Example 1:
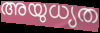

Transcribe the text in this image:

അയുധ്യത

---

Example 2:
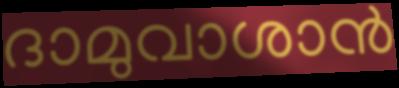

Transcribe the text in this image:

ദാമുവാശാൻ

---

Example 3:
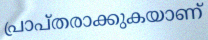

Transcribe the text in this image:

പ്രാപ്തരാക്കുകയാണ്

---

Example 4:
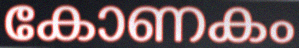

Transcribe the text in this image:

കോണകം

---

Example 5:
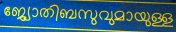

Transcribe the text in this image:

ജ്യോതിബസുവുമായുള്ള